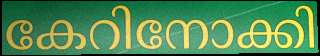
കേറിനോക്കി